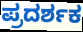
ಪ್ರದರ್ಶಕ